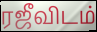
ரஜீவிடம்